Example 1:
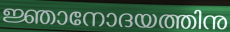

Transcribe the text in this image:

ജ്ഞാനോദയത്തിനു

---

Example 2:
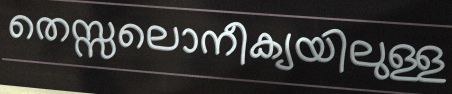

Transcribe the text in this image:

തെസ്സലൊനീക്യയിലുള്ള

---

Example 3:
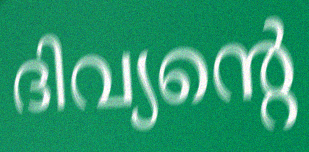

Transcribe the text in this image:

ദിവ്യന്റെ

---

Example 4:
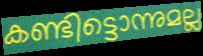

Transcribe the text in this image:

കണ്ടിട്ടൊന്നുമല്ല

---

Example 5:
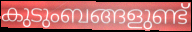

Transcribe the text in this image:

കുടുംബങ്ങളുണ്ട്